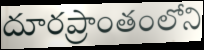
దూరప్రాంతంలోని